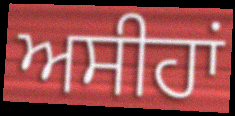
ਅਸੀਹਾਂ